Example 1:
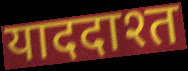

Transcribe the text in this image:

याददाश्त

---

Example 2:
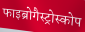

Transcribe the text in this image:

फाइब्रोगैस्ट्रोस्कोप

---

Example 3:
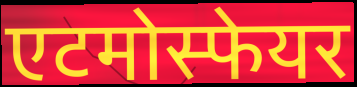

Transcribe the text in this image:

एटमोस्फेयर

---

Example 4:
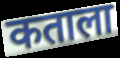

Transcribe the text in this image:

कताला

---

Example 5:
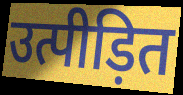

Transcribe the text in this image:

उत्पीड़ित